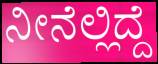
ನೀನೆಲ್ಲಿದ್ದೆ